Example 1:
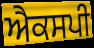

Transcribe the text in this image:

ਐਕਸਪੀ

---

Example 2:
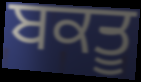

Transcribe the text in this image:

ਬਕਤੂ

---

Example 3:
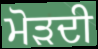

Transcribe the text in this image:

ਮੋੜਦੀ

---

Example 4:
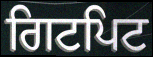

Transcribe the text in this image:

ਗਿਟਪਿਟ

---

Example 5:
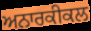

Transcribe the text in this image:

ਅਨਾਰਕੀਕਲ